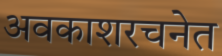
अवकाशरचनेत